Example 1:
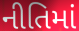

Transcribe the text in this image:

નીતિમાં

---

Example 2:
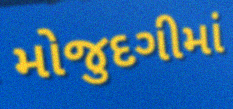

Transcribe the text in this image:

મોજુદગીમાં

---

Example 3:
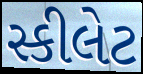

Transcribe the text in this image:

સ્કીલેટ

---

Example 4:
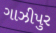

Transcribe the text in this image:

ગાઝીપુર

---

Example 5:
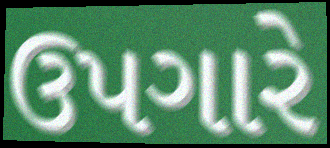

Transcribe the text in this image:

ઉપગારે